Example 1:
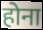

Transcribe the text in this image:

होना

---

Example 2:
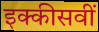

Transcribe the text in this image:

इक्कीसवीं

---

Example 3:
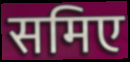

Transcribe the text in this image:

समिए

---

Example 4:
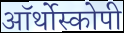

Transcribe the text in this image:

ऑर्थोस्कोपी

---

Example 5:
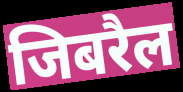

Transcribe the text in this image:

जिबरैल